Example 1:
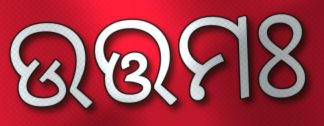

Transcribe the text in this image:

ଉତ୍ତମଃ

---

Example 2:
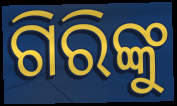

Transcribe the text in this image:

ଗିରିଙ୍କୁ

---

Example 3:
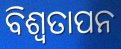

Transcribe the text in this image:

ବିଶ୍ବତାପନ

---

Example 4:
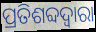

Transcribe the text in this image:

ପ୍ରତିଶବ୍ଦଦ୍ୱାରା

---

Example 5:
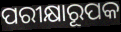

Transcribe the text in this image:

ପରୀକ୍ଷାରୂପକ